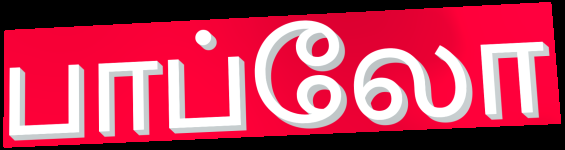
பாப்லோ